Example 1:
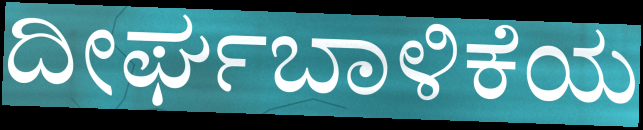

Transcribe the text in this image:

ದೀರ್ಘಬಾಳಿಕೆಯ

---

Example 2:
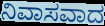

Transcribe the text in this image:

ನಿವಾಸವಾದ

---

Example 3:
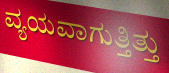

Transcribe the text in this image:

ವ್ಯಯವಾಗುತ್ತಿತ್ತು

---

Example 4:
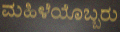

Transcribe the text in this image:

ಮಹಿಳೆಯೊಬ್ಬರು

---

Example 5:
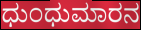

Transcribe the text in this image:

ಧುಂಧುಮಾರನ